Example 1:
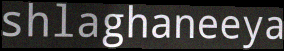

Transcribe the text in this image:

shlaghaneeya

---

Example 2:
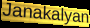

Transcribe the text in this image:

Janakalyan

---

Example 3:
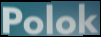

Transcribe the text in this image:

Polok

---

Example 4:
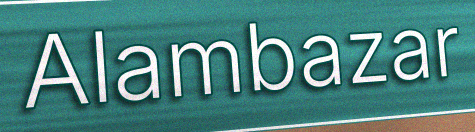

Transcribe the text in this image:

Alambazar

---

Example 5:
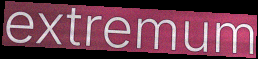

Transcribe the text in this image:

extremum